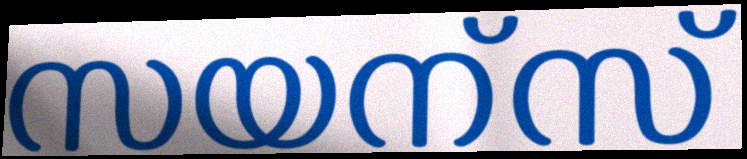
സയന്സ്